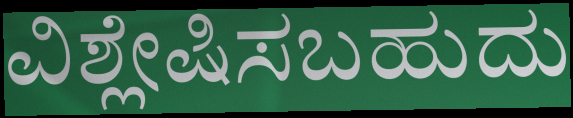
ವಿಶ್ಲೇಷಿಸಬಹುದು